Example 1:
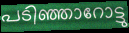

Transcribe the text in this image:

പടിഞ്ഞാറോട്ടു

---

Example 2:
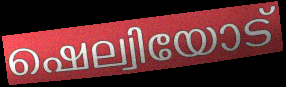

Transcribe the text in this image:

ഷെല്വിയോട്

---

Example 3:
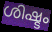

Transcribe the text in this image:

ശിഷ്ടം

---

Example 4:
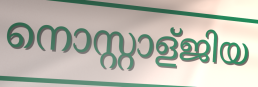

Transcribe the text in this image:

നൊസ്റ്റാള്ജിയ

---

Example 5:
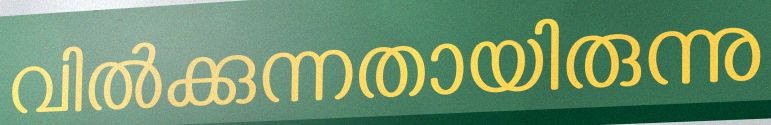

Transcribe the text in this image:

വിൽക്കുന്നതായിരുന്നു